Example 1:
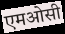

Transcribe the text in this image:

एमओसी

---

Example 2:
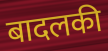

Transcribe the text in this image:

बादलकी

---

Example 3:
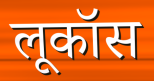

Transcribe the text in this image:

लूकॉस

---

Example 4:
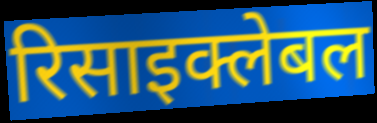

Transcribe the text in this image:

रिसाइक्लेबल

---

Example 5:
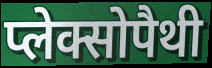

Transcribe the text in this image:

प्लेक्सोपैथी